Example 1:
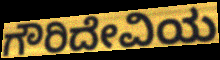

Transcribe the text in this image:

ಗೌರಿದೇವಿಯ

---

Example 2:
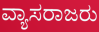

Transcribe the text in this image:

ವ್ಯಾಸರಾಜರು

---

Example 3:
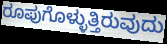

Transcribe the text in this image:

ರೂಪುಗೊಳ್ಳುತ್ತಿರುವುದು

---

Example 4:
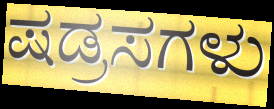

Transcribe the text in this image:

ಷಡ್ರಸಗಳು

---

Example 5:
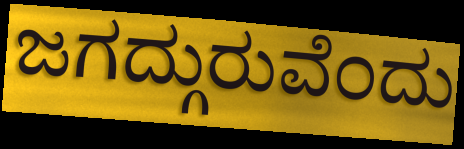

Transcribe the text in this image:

ಜಗದ್ಗುರುವೆಂದು